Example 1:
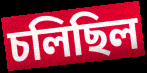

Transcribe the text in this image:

চলিছিল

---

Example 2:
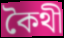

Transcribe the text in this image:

কৈথী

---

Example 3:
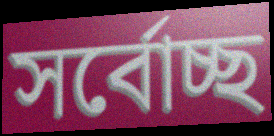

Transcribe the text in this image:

সৰ্বোচ্ছ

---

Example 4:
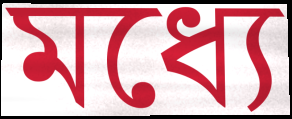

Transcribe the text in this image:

মধ্যে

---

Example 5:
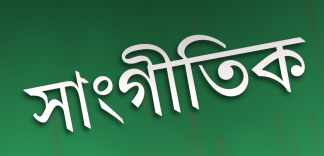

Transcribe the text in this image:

সাংগীতিক